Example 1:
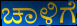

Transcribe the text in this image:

ಚಾಳಿಗೆ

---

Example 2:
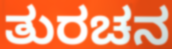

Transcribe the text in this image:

ತುರಚನ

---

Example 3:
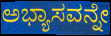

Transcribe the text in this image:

ಅಭ್ಯಾಸವನ್ನೇ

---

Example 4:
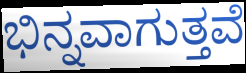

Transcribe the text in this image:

ಭಿನ್ನವಾಗುತ್ತವೆ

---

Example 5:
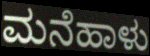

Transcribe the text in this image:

ಮನೆಹಾಳು